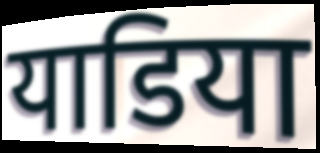
याडिया